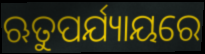
ଋତୁପର୍ଯ୍ୟାୟରେ